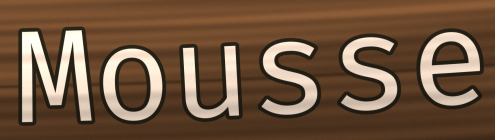
Mousse